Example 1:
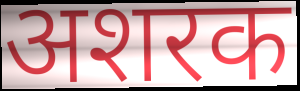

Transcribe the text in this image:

अशरक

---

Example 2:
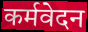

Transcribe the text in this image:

कर्मवेदन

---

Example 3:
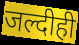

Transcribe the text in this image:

जल्दीही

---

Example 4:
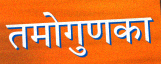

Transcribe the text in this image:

तमोगुणका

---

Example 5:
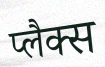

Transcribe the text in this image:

प्लैक्स